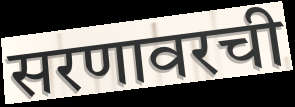
सरणावरची